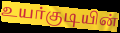
உயர்குடியின்